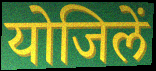
योजिलें